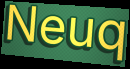
Neuq